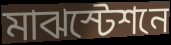
মাঝস্টেশনে